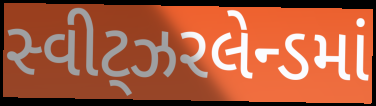
સ્વીટ્ઝરલેન્ડમાં